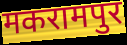
मकरामपुर